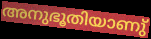
അനുഭൂതിയാണു്